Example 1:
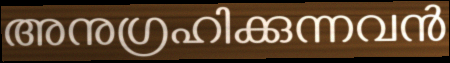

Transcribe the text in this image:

അനുഗ്രഹിക്കുന്നവൻ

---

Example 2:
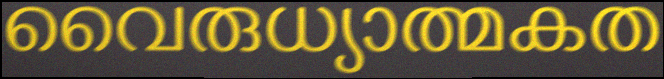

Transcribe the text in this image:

വൈരുധ്യാത്മകത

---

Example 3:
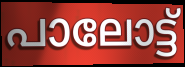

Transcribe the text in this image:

പാലോട്ട്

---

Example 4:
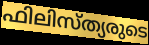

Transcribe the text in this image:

ഫിലിസ്ത്യരുടെ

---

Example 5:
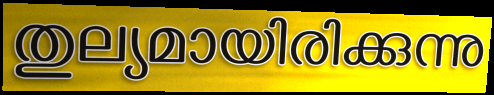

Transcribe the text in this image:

തുല്യമായിരിക്കുന്നു